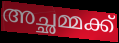
അച്ഛമ്മക്ക്